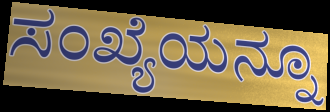
ಸಂಖ್ಯೆಯನ್ನೂ